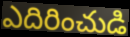
ఎదిరించుడి